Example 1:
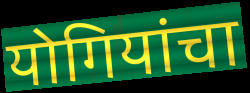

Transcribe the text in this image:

योगियांचा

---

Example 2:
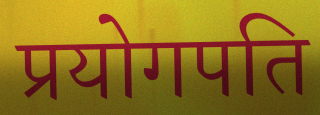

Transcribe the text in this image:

प्रयोगपति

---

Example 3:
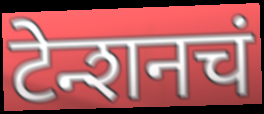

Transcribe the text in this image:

टेन्शनचं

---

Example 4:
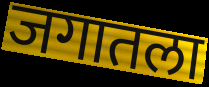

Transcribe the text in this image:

जगातला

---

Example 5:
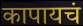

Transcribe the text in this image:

कापायचं